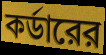
কর্ডারের